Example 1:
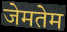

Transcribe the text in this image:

जेमतेम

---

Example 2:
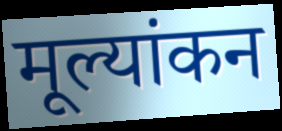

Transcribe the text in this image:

मूल्यांकन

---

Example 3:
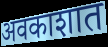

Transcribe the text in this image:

अवकाशात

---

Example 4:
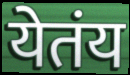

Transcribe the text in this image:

येतंय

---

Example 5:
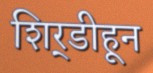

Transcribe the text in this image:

शिर्डीहून